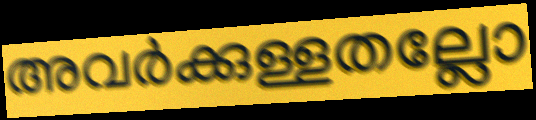
അവർക്കുള്ളതല്ലോ